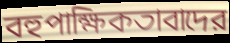
বহুপাক্ষিকতাবাদের